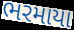
ભરમાયા